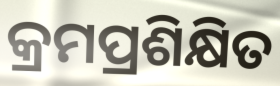
କ୍ରମପ୍ରଶିକ୍ଷିତ